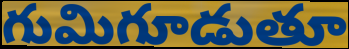
గుమిగూడుతూ